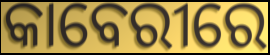
କାବେରୀରେ